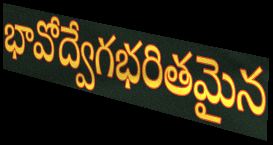
భావోద్వేగభరితమైన